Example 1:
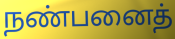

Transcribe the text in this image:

நண்பனைத்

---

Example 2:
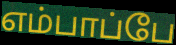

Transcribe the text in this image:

எம்பாப்பே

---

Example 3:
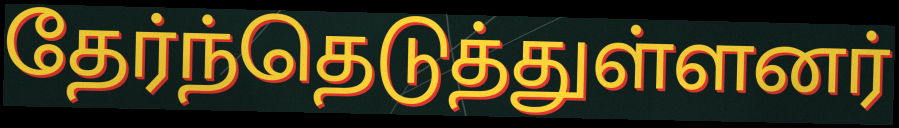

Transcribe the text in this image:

தேர்ந்தெடுத்துள்ளனர்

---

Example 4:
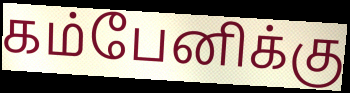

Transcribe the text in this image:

கம்பேனிக்கு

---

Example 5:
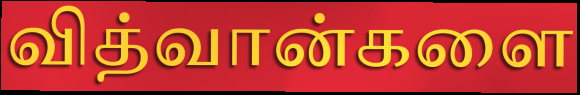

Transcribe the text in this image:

வித்வான்களை